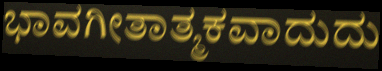
ಭಾವಗೀತಾತ್ಮಕವಾದುದು